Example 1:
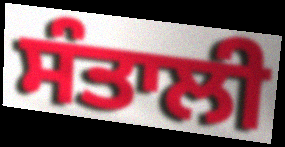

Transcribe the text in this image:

ਸੰਤਾਲੀ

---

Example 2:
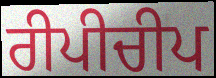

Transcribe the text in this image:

ਰੀਪੀਚੀਪ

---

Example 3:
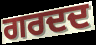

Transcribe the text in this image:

ਗਰਦਦ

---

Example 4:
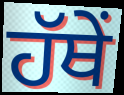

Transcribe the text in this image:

ਹੱਥੇਂ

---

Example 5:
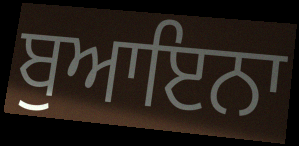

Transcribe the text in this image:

ਬੁਆਇਨਾ